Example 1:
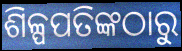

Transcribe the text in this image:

ଶିଳ୍ପପତିଙ୍କଠାରୁ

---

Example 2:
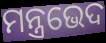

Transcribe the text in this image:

ମନ୍ତ୍ରଭେଦ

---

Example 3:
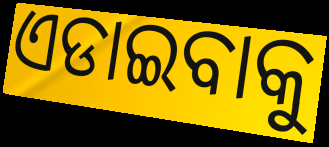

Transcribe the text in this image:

ଏଡାଇବାକୁ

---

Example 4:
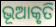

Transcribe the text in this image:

ଭୂଆକୃତି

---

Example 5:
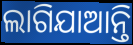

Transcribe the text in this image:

ଲାଗିଯାଆନ୍ତି